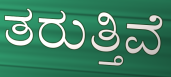
ತರುತ್ತಿವೆ